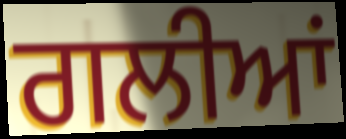
ਗਲੀਆਂ